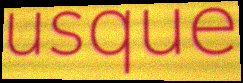
usque